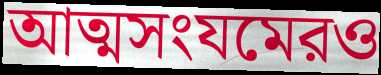
আত্মসংযমেরও